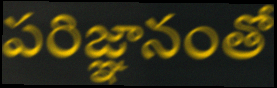
పరిజ్ఞానంతో